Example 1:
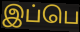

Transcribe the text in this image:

இப்பெ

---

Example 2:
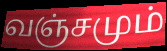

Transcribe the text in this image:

வஞ்சமும்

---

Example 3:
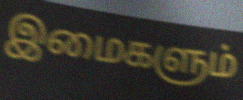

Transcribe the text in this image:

இமைகளும்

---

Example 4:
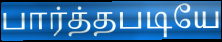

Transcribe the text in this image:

பார்த்தபடியே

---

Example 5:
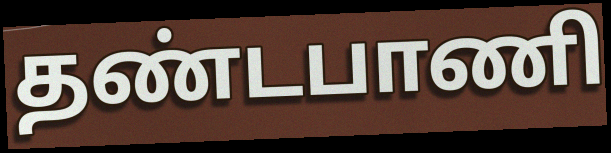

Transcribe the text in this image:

தண்டபாணி